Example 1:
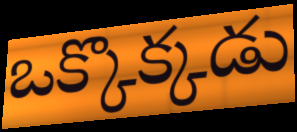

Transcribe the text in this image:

ఒక్కొక్కడు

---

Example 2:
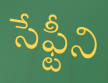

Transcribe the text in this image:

సేఫ్టీని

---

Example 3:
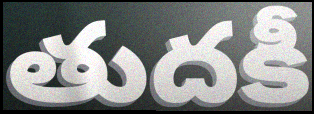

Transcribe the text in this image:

తుదకీ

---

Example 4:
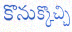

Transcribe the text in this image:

కొనుక్కొచ్చి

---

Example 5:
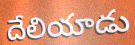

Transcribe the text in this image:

దేలియాడు